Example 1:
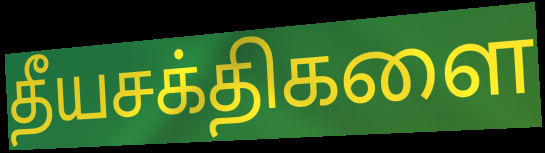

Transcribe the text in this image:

தீயசக்திகளை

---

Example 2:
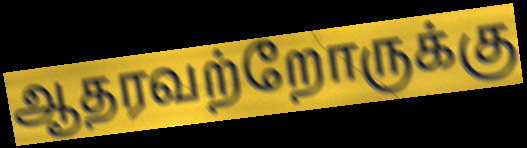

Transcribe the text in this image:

ஆதரவற்றோருக்கு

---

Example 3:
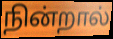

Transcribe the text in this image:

நின்றால்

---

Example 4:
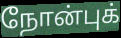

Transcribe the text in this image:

நோன்புக்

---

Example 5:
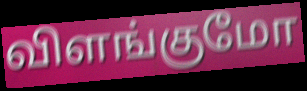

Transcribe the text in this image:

விளங்குமோ